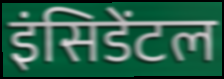
इंसिडेंटल